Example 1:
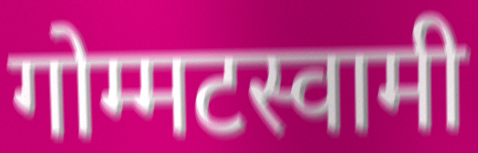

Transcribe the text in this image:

गोम्मटस्वामी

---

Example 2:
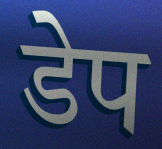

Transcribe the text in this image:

डेप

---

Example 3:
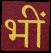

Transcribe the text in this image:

भीं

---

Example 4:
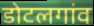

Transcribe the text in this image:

डोटलगांव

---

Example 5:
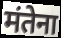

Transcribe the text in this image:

मंतेना